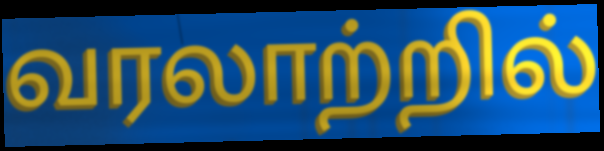
வரலாற்றில்